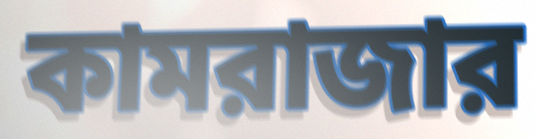
কামরাজার